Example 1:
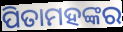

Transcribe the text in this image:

ପିତାମହଙ୍କର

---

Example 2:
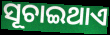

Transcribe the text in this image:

ସୂଚାଇଥାଏ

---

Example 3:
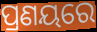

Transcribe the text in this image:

ପ୍ରଣୟରେ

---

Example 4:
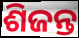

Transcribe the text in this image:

ଶିଜନ୍ତ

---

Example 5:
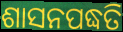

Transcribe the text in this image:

ଶାସନପଦ୍ଧତି